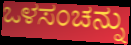
ಒಳಸಂಚನ್ನು